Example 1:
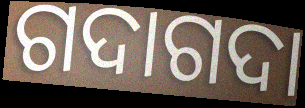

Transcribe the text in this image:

ଗଦାଗଦା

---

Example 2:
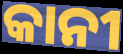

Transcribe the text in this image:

କାନୀ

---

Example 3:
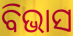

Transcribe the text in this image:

ବିଭାସ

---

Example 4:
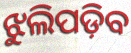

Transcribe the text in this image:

ଝୁଲିପଡ଼ିବ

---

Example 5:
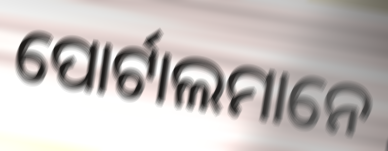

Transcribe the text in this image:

ପୋର୍ଟାଲମାନେ